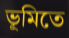
ভূমিতে